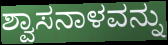
ಶ್ವಾಸನಾಳವನ್ನು